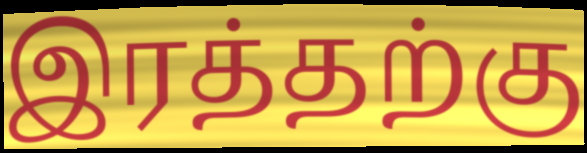
இரத்தற்கு